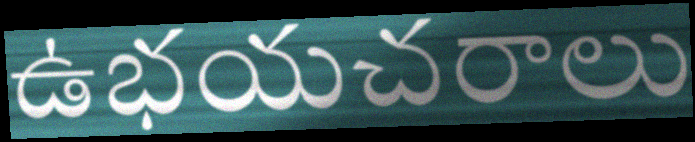
ఉభయచరాలు